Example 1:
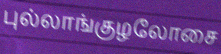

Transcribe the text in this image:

புல்லாங்குழலோசை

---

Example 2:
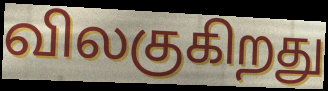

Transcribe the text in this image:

விலகுகிறது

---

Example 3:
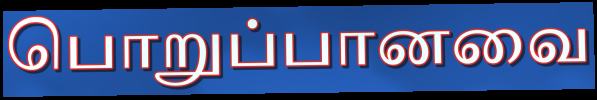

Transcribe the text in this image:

பொறுப்பானவை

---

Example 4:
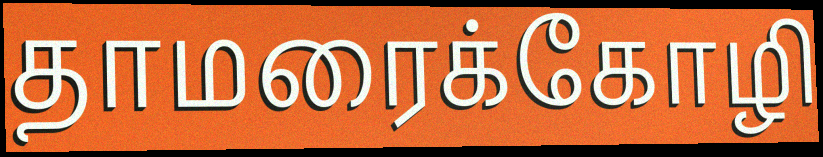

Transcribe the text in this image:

தாமரைக்கோழி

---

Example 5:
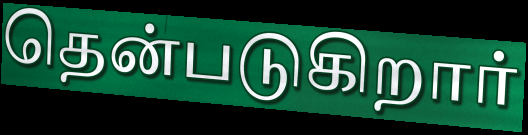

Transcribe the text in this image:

தென்படுகிறார்